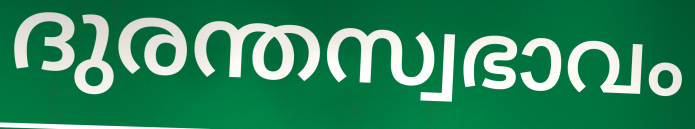
ദുരന്തസ്വഭാവം